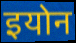
इयोन